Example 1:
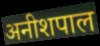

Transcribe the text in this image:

अनीशपाल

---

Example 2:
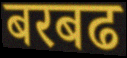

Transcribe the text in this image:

बरबढ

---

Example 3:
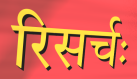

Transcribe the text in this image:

रिसर्चः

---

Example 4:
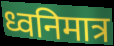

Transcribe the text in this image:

ध्वनिमात्र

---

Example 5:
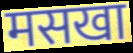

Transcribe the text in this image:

मसखा